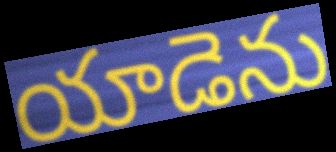
యాడెను